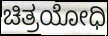
ಚಿತ್ರಯೋಧಿ